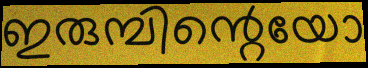
ഇരുമ്പിന്റെയോ